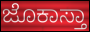
ಜೊಕಾಸ್ತಾ